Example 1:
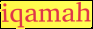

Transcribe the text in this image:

iqamah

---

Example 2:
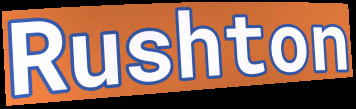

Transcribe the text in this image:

Rushton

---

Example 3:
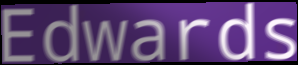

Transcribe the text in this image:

Edwards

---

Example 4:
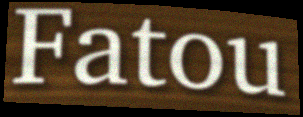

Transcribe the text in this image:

Fatou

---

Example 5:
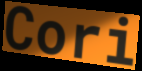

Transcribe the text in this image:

Cori